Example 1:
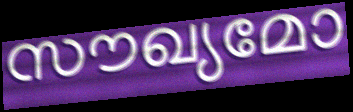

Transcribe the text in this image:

സൗഖ്യമോ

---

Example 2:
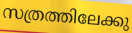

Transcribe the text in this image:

സത്രത്തിലേക്കു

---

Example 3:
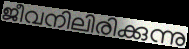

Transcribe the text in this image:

ജീവനിലിരിക്കുന്നു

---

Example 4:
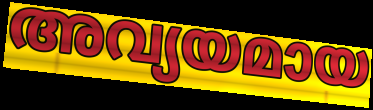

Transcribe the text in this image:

അവ്യയമായ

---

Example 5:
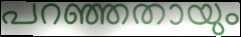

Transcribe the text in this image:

പറഞ്ഞതായും